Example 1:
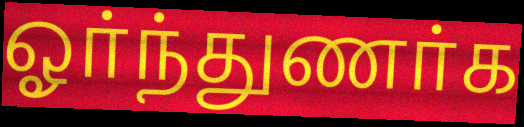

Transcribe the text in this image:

ஓர்ந்துணர்க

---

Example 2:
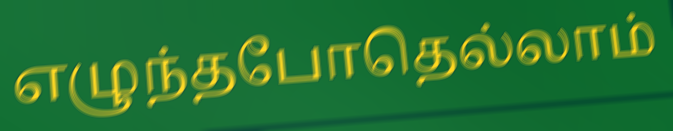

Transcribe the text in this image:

எழுந்தபோதெல்லாம்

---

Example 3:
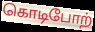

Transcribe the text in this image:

கொடிபோற்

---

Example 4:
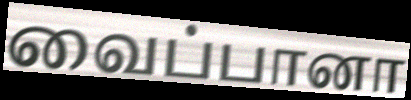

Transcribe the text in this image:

வைப்பானா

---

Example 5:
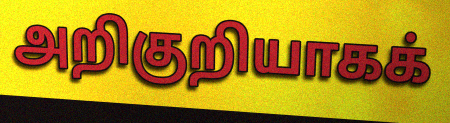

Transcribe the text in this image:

அறிகுறியாகக்